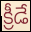
క్రీడే